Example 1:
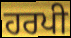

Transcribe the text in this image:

ਹਰਪੀ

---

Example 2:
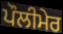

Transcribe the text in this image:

ਪੌਲੀਮੇਰ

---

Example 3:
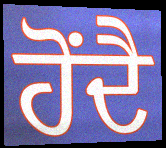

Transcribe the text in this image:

ਹੋਂਦੈ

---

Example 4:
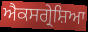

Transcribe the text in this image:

ਐਕਸਗ੍ਰੇਸ਼ਿਆ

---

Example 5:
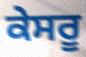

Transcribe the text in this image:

ਕੇਸਰੂ